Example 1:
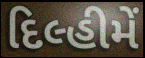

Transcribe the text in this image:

દિલ્હીમેં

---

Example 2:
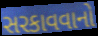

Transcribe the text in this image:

સરકાવવાનો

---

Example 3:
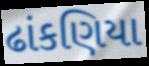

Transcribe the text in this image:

ઢાંકણિયા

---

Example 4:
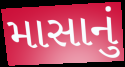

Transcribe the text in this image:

માસાનું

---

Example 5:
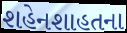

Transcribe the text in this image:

શહેનશાહતના